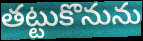
తట్టుకొనును